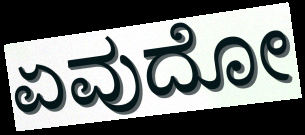
ಏವುದೋ